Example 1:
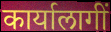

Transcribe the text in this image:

कार्यालागीं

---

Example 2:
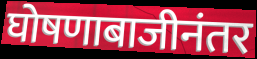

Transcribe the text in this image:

घोषणाबाजीनंतर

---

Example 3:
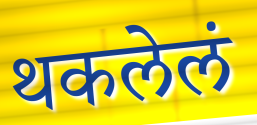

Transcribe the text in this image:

थकलेलं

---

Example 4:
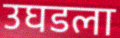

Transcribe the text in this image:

उघडला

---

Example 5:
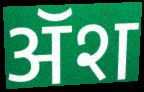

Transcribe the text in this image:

ॲश